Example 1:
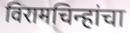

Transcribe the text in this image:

विरामचिन्हांचा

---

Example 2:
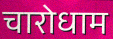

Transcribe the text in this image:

चारोधाम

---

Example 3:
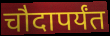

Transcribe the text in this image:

चौदापर्यंत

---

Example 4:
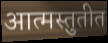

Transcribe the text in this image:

आत्मस्तुतीत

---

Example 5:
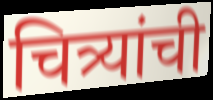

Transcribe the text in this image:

चित्र्यांची